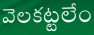
వెలకట్టలేం